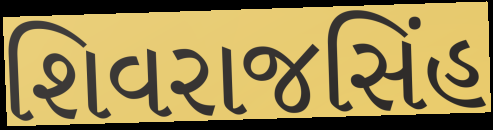
શિવરાજસિંહ